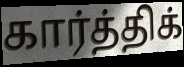
கார்த்திக்